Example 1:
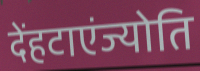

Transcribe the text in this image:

देंहटाएंज्योति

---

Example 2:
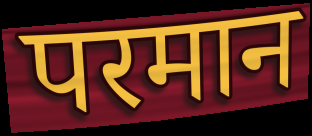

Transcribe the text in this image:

परमान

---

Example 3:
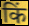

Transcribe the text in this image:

किं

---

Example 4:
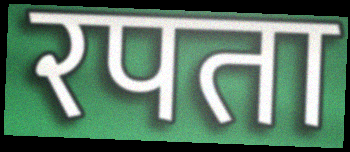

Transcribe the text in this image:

रपता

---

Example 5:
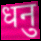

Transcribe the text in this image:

धनु